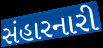
સંહારનારી